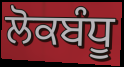
ਲੋਕਬੰਧੂ